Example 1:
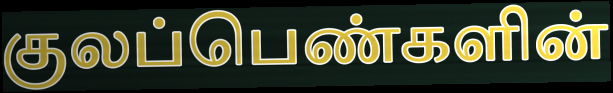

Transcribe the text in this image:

குலப்பெண்களின்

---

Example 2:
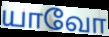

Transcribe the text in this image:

யாவோ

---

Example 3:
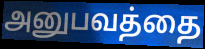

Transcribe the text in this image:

அனுபவத்தை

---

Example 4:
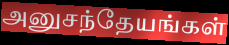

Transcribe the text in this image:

அனுசந்தேயங்கள்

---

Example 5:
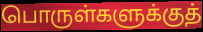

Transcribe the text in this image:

பொருள்களுக்குத்